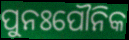
ପୁନଃପୌନିକ